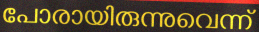
പോരായിരുന്നുവെന്ന്